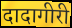
दादागीरी